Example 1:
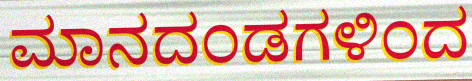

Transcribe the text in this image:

ಮಾನದಂಡಗಳಿಂದ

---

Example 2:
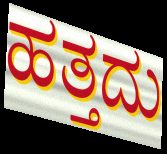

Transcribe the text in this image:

ಹತ್ತದು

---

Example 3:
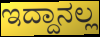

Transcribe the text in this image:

ಇದ್ದಾನಲ್ಲ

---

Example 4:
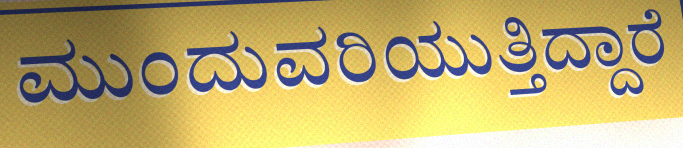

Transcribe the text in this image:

ಮುಂದುವರಿಯುತ್ತಿದ್ದಾರೆ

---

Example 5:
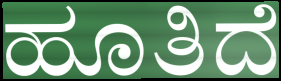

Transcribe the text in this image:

ಹೂತಿದೆ